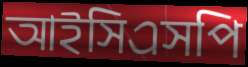
আইসিএসপি